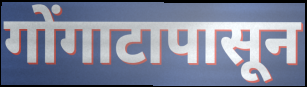
गोंगाटापासून